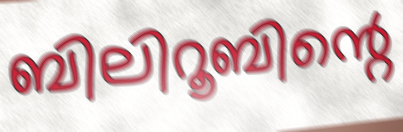
ബിലിറൂബിന്റെ